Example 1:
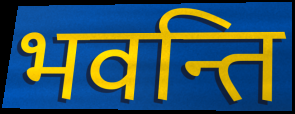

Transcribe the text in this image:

भवन्ति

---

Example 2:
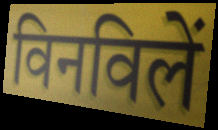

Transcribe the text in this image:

विनविलें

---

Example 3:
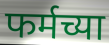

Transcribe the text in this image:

फर्मच्या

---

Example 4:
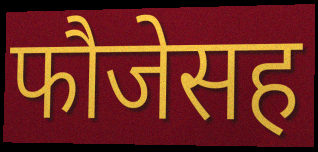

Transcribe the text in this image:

फौजेसह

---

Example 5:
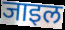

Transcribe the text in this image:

जाइल